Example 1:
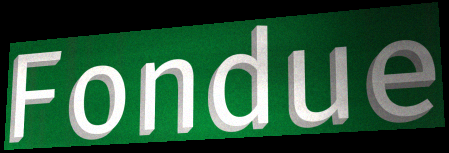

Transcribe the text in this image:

Fondue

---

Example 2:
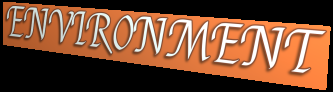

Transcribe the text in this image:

ENVIRONMENT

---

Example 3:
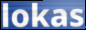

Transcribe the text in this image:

lokas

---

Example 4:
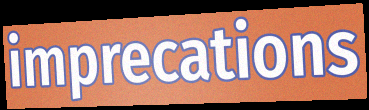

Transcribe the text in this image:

imprecations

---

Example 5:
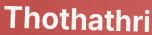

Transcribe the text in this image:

Thothathri